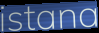
istana